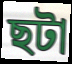
ছটা